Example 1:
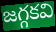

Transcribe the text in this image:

జగ్గకవి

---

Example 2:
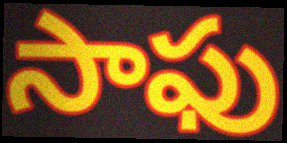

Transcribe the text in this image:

సాఫు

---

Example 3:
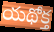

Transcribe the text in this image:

యథోక్త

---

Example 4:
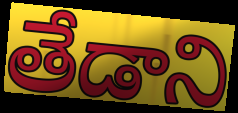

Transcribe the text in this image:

తేడాని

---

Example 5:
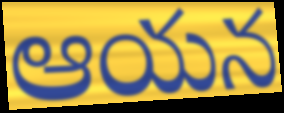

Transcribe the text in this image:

ఆయన